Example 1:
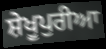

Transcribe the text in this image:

ਸ਼ੇਖੂਪੁਰੀਆ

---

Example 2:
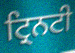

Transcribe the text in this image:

ਟ੍ਰਿਨਟੀ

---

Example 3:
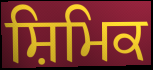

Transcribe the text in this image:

ਸ਼ਿਮਿਕ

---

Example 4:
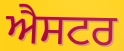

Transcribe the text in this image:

ਐਸਟਰ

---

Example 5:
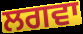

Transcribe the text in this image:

ਲਗਵਾ